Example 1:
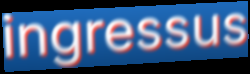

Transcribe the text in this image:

ingressus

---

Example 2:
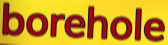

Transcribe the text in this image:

borehole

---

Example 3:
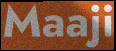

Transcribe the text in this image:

Maaji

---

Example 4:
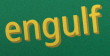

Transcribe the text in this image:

engulf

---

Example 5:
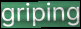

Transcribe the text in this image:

griping